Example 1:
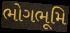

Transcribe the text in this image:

ભોગભૂમિ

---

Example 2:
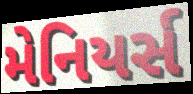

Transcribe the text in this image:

મેનિયર્સ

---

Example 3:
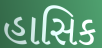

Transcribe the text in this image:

હાસિક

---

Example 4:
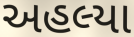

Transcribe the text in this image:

અહલ્યા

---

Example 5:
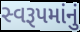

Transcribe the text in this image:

સ્વરૂપમાંનું